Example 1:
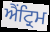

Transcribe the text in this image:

ਐਂਟ੍ਰਿਮ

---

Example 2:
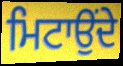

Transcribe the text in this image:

ਮਿਟਾਉਂਦੇ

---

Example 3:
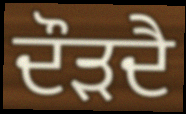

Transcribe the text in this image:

ਦੌੜਦੈ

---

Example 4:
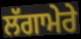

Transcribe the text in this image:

ਲੱਗਾਮੇਰੇ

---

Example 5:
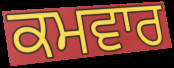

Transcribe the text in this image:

ਕਮਵਾਰ